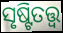
ସୃଷ୍ଟିତତ୍ତ୍ୱ